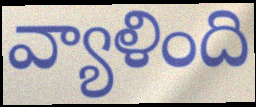
వ్యాళింది